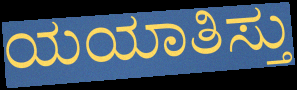
ಯಯಾತಿಸ್ತು